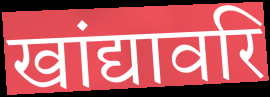
खांद्यावरि